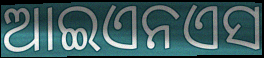
ଆଇଏନଏସ